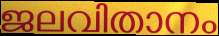
ജലവിതാനം